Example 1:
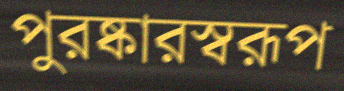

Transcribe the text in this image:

পুরষ্কারস্বরূপ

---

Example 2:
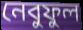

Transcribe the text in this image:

নেবুফুল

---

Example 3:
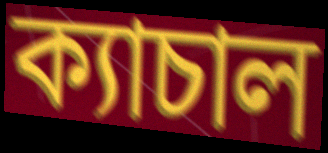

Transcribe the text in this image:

ক্যাচাল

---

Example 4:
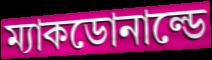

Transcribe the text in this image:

ম্যাকডোনাল্ডে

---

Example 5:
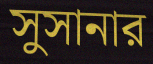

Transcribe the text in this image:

সুসানার